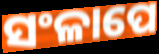
ସଂଳାପେ